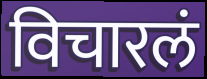
विचारलं